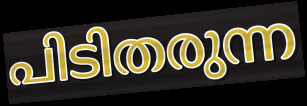
പിടിതരുന്ന